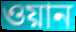
ওয়ান